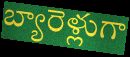
బ్యారెళ్లుగా